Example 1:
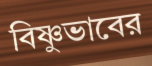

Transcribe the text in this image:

বিষ্ণুভাবের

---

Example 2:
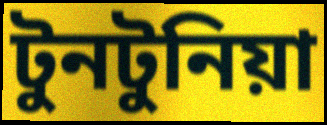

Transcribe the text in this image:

টুনটুনিয়া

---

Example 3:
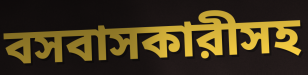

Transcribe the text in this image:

বসবাসকারীসহ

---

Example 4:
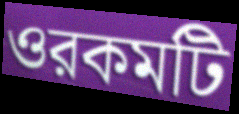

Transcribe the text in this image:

ওরকমটি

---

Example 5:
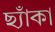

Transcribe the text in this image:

ছ্যাঁকা